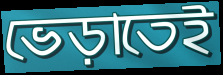
ভেড়াতেই